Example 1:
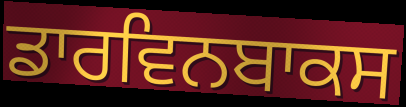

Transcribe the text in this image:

ਡਾਰਵਿਨਬਾਕਸ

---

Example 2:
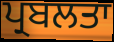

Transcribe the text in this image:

ਪ੍ਰਬਲਤਾ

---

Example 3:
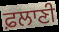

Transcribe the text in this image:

ਫ਼ਲਾਣੀ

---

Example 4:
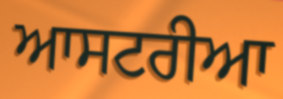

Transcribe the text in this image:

ਆਸਟਰੀਆ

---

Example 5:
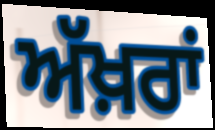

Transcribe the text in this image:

ਅੱਖ਼ਰਾਂ